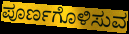
ಪೂರ್ಣಗೊಳಿಸುವ